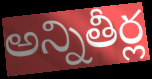
అన్నితీర్ల